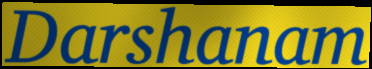
Darshanam